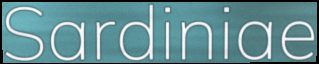
Sardiniae